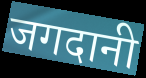
जगदानी